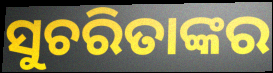
ସୁଚରିତାଙ୍କର